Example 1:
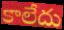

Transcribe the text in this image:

కాలేదు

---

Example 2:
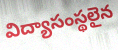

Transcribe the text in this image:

విద్యాసంస్థలైన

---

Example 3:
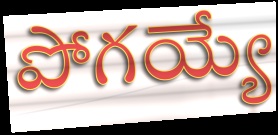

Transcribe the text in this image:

పోగయ్యే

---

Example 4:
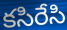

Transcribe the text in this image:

కసిరేసి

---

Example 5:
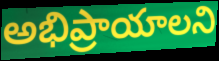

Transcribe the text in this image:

అభిప్రాయాలని